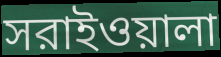
সরাইওয়ালা